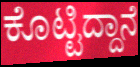
ಕೊಟ್ಟಿದ್ದಾನೆ